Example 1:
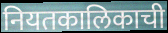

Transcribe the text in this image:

नियतकालिकाची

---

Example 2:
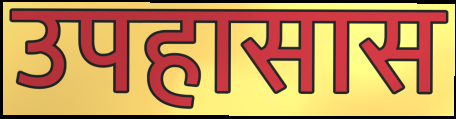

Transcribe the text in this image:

उपहासास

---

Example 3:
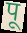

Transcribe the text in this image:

पू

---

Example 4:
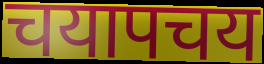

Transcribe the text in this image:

चयापचय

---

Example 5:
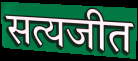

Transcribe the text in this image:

सत्यजीत